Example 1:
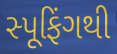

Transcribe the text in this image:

સ્પૂફિંગથી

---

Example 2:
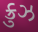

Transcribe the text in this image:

ક્રુઝ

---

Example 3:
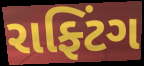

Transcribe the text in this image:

રાફ્ટિંગ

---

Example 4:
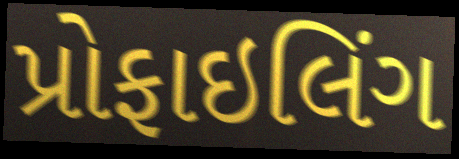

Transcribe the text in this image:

પ્રોફાઇલિંગ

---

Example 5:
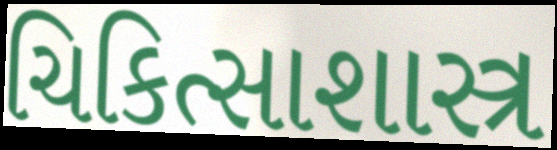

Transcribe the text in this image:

ચિકિત્સાશાસ્ત્ર